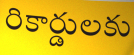
రికార్డులకు